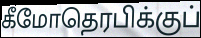
கீமோதெரபிக்குப்